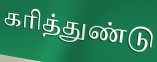
கரித்துண்டு